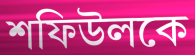
শফিউলকে